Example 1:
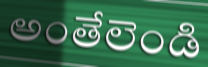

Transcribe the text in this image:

అంతేలెండి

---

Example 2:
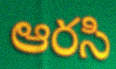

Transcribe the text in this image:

ఆరసి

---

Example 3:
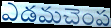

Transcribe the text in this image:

ఎడమచెంప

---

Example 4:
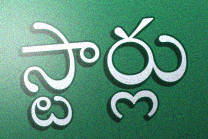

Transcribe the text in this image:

స్టార్లు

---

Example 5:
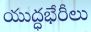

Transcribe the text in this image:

యుద్ధభేరీలు